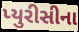
પ્યુરીસીના